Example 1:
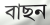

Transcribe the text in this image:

বাছন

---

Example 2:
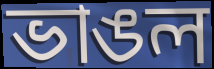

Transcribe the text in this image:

ভাঙল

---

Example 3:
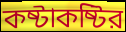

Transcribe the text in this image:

কষ্টাকষ্টির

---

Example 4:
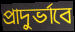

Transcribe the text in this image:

প্রাদুর্ভাবে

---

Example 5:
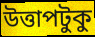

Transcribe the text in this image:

উত্তাপটুকু